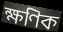
ক্ষণিক